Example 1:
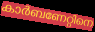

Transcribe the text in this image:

കാർബണേറ്റിനെ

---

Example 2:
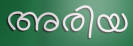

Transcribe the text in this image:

അരിയ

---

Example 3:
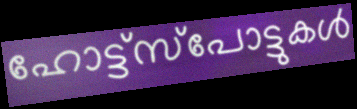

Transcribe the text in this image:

ഹോട്ട്സ്പോട്ടുകൾ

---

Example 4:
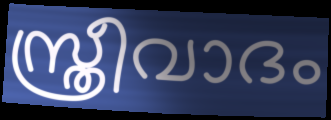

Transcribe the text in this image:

സ്ത്രീവാദം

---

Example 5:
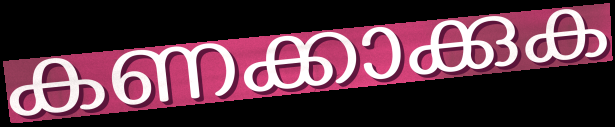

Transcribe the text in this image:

കണക്കാക്കുക